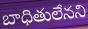
బాధితులేనని